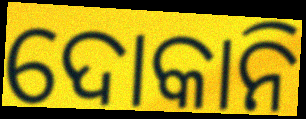
ଦୋକାନି